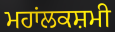
ਮਹਾਂਲਕਸ਼ਮੀ